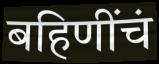
बहिणींचं